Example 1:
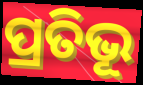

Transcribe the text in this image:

ପ୍ରତିଭୂ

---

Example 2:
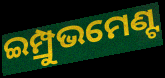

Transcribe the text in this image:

ଇମ୍ପ୍ରୁଭମେଣ୍ଟ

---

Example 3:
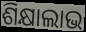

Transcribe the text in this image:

ଶିକ୍ଷାଲାଭ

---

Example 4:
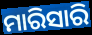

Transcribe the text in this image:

ମାରିସାରି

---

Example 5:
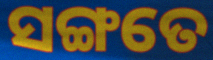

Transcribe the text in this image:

ସଙ୍ଗତେ